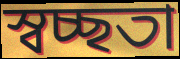
স্বচ্ছতা